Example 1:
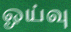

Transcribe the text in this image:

ஓய்வு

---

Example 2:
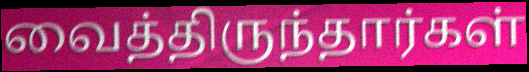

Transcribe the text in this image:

வைத்திருந்தார்கள்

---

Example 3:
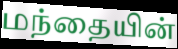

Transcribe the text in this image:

மந்தையின்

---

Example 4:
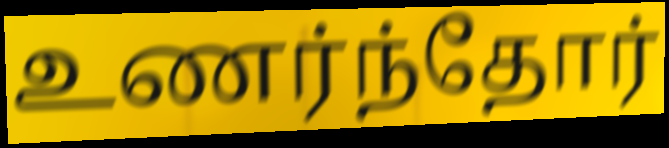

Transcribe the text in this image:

உணர்ந்தோர்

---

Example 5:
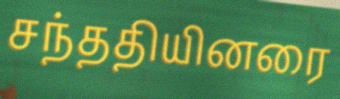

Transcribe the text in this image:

சந்ததியினரை